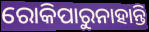
ରୋକିପାରୁନାହାନ୍ତି